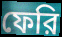
ফেরি